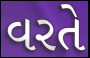
વરતે